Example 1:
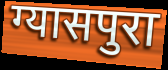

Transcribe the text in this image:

ग्यासपुरा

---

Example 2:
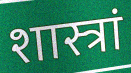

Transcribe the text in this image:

शास्त्रां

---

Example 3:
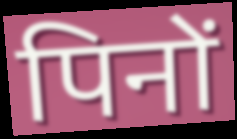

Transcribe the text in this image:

पिनों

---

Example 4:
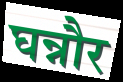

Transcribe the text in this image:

घन्नौर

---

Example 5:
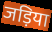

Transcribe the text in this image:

जड़िया